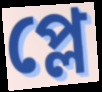
প্লে